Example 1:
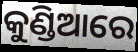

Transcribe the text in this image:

କୁଣ୍ଡିଆରେ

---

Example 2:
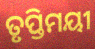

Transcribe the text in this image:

ତୃପ୍ତିମୟୀ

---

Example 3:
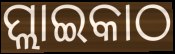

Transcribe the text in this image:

ପ୍ଲାଇକାଠ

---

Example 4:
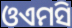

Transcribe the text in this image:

ଓଏମସି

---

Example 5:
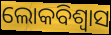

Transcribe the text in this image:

ଲୋକବିଶ୍ୱାସ